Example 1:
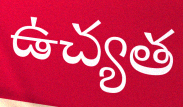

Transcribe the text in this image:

ఉచ్యత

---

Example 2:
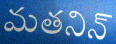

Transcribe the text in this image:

మతనిన్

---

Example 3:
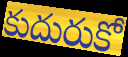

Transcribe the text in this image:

కుదురుకో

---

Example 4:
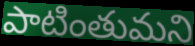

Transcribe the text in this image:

పాటింతుమని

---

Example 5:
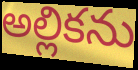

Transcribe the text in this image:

అల్లికను